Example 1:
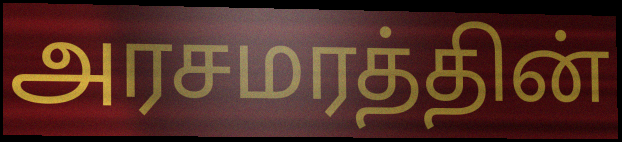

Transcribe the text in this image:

அரசமரத்தின்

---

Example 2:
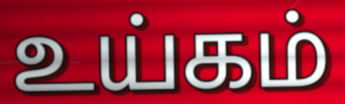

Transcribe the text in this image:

உய்கம்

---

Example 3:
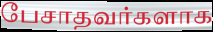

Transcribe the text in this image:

பேசாதவர்களாக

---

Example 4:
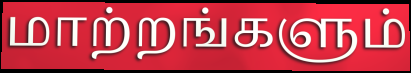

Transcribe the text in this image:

மாற்றங்களும்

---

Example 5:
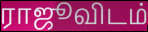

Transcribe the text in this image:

ராஜூவிடம்